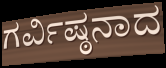
ಗರ್ವಿಷ್ಠನಾದ